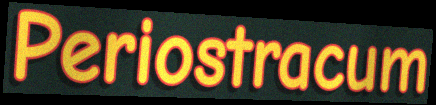
Periostracum